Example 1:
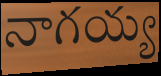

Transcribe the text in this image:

నాగయ్య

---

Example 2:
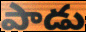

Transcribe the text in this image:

పాడు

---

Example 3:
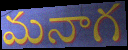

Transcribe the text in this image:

మనాగ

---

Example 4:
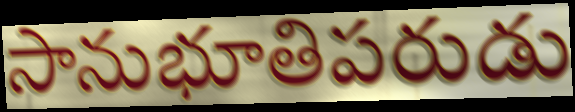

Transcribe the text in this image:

సానుభూతిపరుడు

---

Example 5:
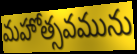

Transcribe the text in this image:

మహోత్సవమును